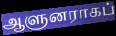
ஆளுனராகப்